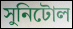
সুনিটোল